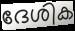
ദേശിക